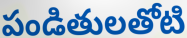
పండితులతోటి